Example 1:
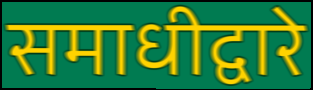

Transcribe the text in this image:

समाधीद्वारे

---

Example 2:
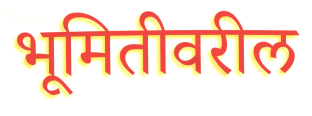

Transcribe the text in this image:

भूमितीवरील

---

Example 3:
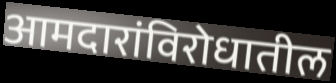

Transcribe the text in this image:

आमदारांविरोधातील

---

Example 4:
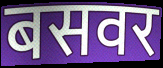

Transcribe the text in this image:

बसवर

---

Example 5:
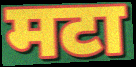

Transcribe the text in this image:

मटा